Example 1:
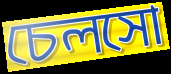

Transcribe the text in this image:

চেলসো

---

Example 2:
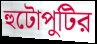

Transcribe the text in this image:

হুটোপুটির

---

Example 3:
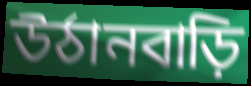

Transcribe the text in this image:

উঠানবাড়ি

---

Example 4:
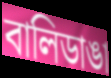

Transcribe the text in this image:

বালিডাঙা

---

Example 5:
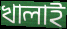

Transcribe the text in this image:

খালাই